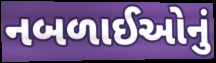
નબળાઈઓનું